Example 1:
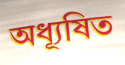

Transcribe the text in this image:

অধ্যূষিত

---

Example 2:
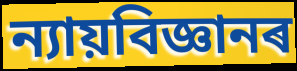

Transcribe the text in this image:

ন্যায়বিজ্ঞানৰ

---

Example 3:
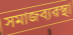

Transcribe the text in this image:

সমাজব্যৱস্থা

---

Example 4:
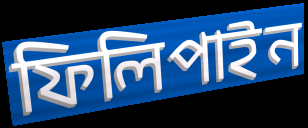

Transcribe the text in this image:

ফিলিপাইন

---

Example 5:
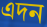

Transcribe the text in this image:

এদন